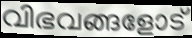
വിഭവങ്ങളോട്